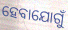
ହେବାଯୋଗୁଁ